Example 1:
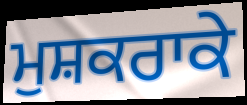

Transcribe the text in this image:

ਮੁਸ਼ਕਰਾਕੇ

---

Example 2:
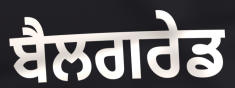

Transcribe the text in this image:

ਬੈਲਗਰੇਡ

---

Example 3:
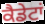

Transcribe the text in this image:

ਕੈਡੇਟਾਂ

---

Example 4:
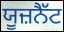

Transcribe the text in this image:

ਯੂਜ਼ਨੈੱਟ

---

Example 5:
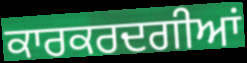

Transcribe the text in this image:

ਕਾਰਕਰਦਗੀਆਂ